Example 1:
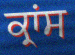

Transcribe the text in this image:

ਕ੍ਰਾਂਸ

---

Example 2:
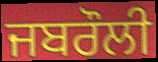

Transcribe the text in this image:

ਜਬਰੌਲੀ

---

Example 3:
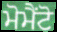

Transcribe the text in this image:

ਮੋਮੈਂਟੋ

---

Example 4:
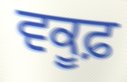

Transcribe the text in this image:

ਵਕੂਫ਼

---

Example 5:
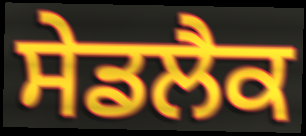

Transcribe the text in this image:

ਸੇਡਲੈਕ